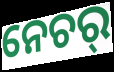
ନେଚର୍